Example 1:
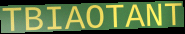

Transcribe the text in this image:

TBIAOTANT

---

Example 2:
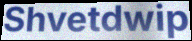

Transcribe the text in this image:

Shvetdwip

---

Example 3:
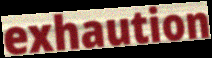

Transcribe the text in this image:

exhaution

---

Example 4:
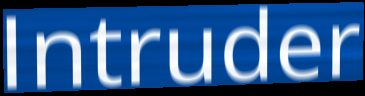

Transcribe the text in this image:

Intruder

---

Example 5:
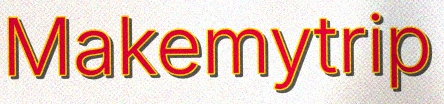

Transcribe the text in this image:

Makemytrip